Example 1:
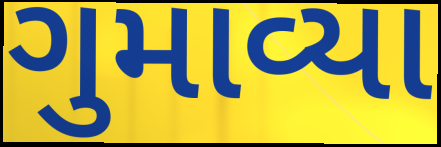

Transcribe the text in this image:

ગુમાવ્યા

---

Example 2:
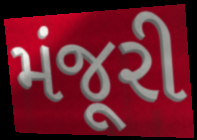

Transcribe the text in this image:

મંજૂરી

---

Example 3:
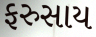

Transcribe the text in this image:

ફરુસાય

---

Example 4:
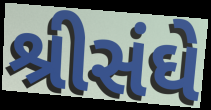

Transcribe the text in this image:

શ્રીસંઘે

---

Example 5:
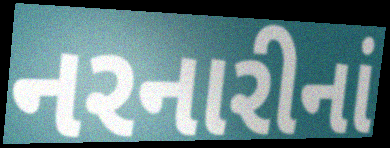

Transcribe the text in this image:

નરનારીનાં